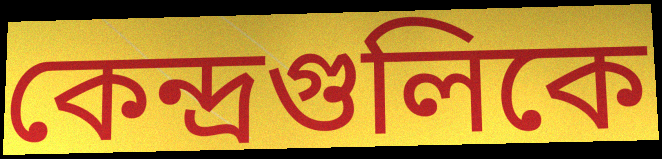
কেন্দ্রগুলিকে